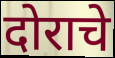
दोराचे